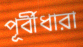
পূর্বীধারা